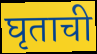
घृताची